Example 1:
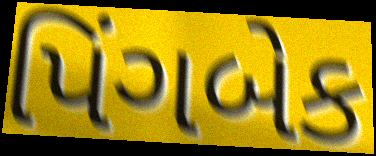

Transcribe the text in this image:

પિંગબેક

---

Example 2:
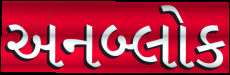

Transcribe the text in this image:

અનબ્લોક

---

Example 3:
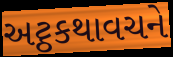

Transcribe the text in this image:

અટ્ઠકથાવચને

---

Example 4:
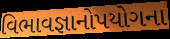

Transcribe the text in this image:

વિભાવજ્ઞાનોપયોગના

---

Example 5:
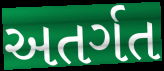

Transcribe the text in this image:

અતર્ગત